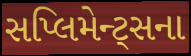
સપ્લિમેન્ટ્સના